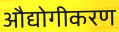
औद्योगीकरण